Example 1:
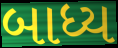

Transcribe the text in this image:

બાધ્ય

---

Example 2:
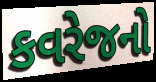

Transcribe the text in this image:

કવરેજનો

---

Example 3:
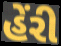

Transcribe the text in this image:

હેંરી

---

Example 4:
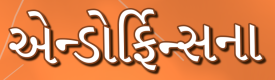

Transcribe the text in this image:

એન્ડોર્ફિન્સના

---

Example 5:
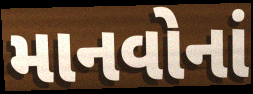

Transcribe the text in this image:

માનવોનાં